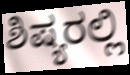
ಶಿಷ್ಯರಲ್ಲಿ